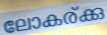
ലോകര്ക്കു